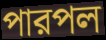
পারপল